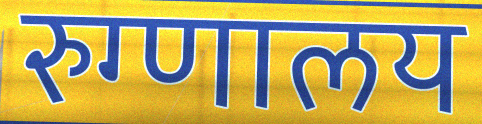
रुग्णालय